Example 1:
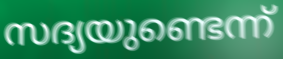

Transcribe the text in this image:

സദ്യയുണ്ടെന്ന്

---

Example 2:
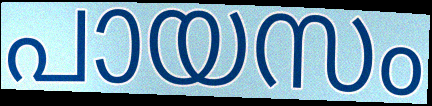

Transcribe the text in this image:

പായസം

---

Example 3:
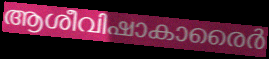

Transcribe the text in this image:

ആശീവിഷാകാരൈർ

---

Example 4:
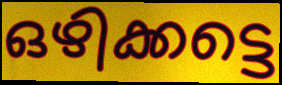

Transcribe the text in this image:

ഒഴിക്കട്ടെ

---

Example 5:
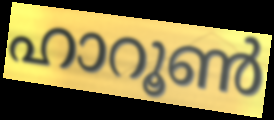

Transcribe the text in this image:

ഹാറൂൺ